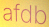
afdb